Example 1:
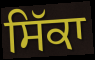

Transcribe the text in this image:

ਸਿੱਕਾ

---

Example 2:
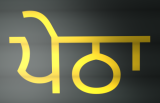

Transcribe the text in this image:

ਪੇਠਾ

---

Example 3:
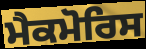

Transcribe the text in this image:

ਮੈਕਮੋਰਿਸ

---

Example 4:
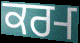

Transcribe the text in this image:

ਕਰ੍ਮ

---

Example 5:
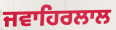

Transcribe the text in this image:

ਜਵਾਹਿਰਲਾਲ